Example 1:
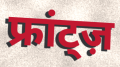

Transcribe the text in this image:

फ्रांट्ज़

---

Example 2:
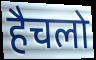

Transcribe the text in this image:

हैचलो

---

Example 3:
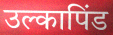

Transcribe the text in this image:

उल्‍कापिंड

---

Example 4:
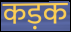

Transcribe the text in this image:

कड़क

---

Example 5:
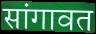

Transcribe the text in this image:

सांगावत